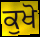
ਕੁਖੋ